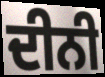
ਦੀਨੀ